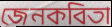
জেনকবিতা